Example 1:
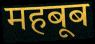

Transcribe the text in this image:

महबूब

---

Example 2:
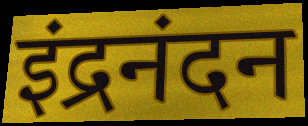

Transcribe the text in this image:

इंद्रनंदन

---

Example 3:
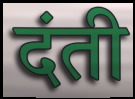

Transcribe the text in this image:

दंती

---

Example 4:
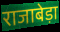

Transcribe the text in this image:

राजाबेड़ा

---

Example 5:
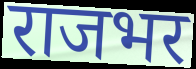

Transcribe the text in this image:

राजभर